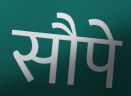
सौपे